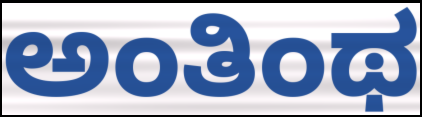
ಅಂತಿಂಥ